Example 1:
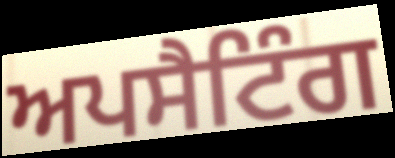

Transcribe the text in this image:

ਅਪਸੈਟਿੰਗ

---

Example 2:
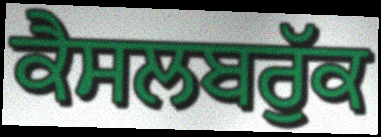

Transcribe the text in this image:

ਕੈਸਲਬਰੁੱਕ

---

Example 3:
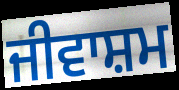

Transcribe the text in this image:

ਜੀਵਾਸ਼ਮ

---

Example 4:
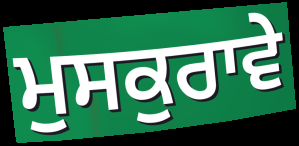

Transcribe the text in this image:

ਮੁਸਕੁਰਾਵੇ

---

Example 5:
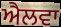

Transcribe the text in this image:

ਐਲਵਾ